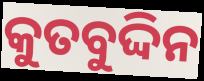
କୁତବୁଦ୍ଦିନ